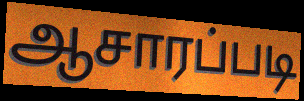
ஆசாரப்படி